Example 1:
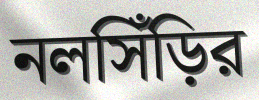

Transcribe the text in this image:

নলসিঁড়ির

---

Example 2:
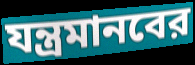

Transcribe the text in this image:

যন্ত্রমানবের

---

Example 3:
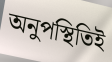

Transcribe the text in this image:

অনুপস্থিতিই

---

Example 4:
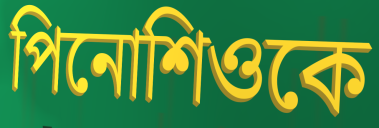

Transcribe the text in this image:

পিনোশিওকে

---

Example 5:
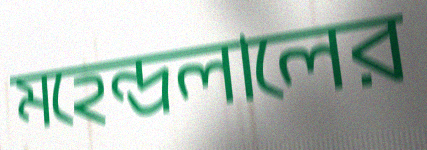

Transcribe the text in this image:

মহেন্দ্রলালের